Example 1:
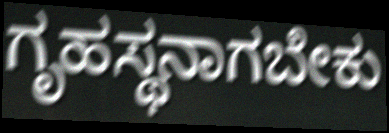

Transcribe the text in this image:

ಗೃಹಸ್ಥನಾಗಬೇಕು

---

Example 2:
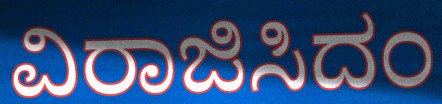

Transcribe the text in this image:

ವಿರಾಜಿಸಿದಂ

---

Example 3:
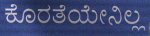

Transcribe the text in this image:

ಕೊರತೆಯೇನಿಲ್ಲ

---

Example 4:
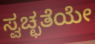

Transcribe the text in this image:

ಸ್ವಚ್ಛತೆಯೇ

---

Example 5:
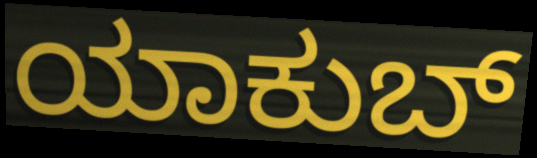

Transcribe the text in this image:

ಯಾಕುಬ್